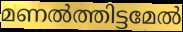
മണൽത്തിട്ടമേൽ